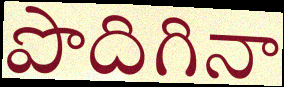
పొదిగినా